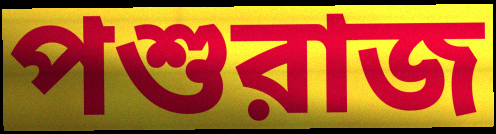
পশুরাজ